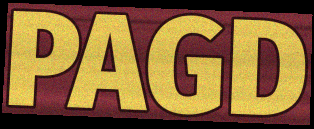
PAGD